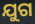
ଯୁଗ